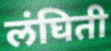
लंघिती